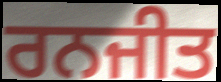
ਰਨਜੀਤ